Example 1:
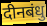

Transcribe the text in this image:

दीनबंधु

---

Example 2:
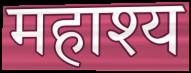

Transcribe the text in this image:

महाश्य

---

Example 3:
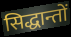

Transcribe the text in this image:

सिद्धान्तों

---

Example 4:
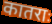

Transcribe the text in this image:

कातराः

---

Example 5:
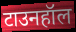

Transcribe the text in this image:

टाउनहॉल